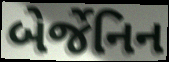
બેર્જેનિન